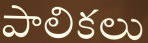
పాలికలు